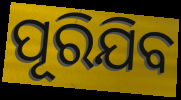
ପୂରିଯିବ